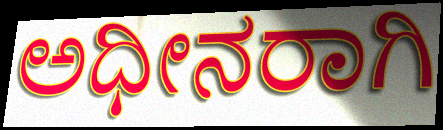
ಅಧೀನರಾಗಿ